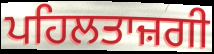
ਪਹਿਲਤਾਜ਼ਗੀ